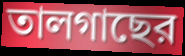
তালগাছের